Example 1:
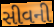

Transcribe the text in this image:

સીવની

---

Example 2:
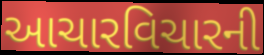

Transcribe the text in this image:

આચારવિચારની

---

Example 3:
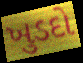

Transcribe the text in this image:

ખુડદો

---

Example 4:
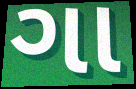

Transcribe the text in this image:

ગા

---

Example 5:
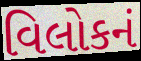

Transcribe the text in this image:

વિલોકનં